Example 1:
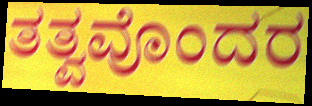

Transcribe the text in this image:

ತತ್ವವೊಂದರ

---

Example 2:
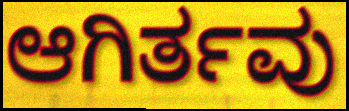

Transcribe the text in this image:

ಆಗಿರ್ತವು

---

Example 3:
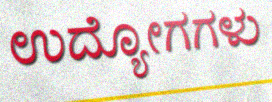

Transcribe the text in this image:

ಉದ್ಯೋಗಗಳು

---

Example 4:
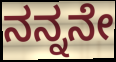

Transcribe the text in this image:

ನನ್ನನೇ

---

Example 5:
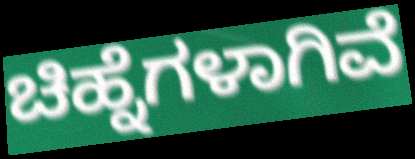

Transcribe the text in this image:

ಚಿಹ್ನೆಗಳಾಗಿವೆ